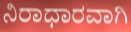
ನಿರಾಧಾರವಾಗಿ